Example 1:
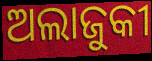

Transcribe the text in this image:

ଅଲାଜୁକୀ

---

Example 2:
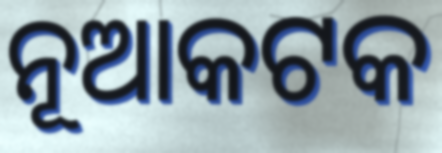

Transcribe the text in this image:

ନୂଆକଟକ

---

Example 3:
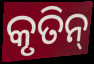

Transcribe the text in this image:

କୃତିନ୍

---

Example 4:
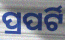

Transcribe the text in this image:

ପ୍ରପର୍ଟି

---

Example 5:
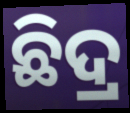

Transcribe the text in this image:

ଛିଦ୍ର